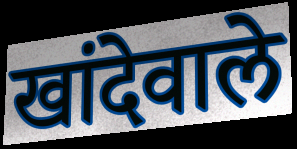
खांदेवाले